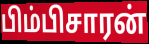
பிம்பிசாரன்